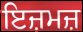
ਇਜ਼ਮਜ਼